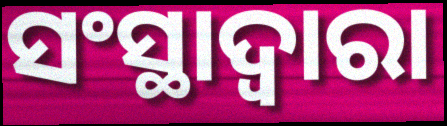
ସଂସ୍ଥାଦ୍ଵାରା